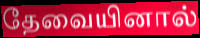
தேவையினால்